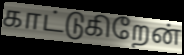
காட்டுகிறேன்